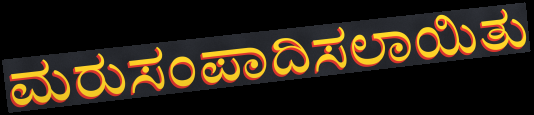
ಮರುಸಂಪಾದಿಸಲಾಯಿತು